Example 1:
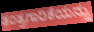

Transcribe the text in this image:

ತಂತ್ರಗಾರಿಕೆಯನ್ನು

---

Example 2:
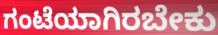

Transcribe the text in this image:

ಗಂಟೆಯಾಗಿರಬೇಕು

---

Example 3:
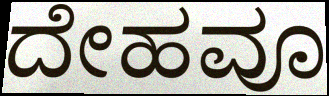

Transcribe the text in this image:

ದೇಹವೂ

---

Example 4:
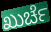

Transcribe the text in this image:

ಖುರ್ಚೆ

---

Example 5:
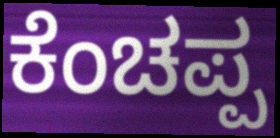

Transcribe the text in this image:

ಕೆಂಚಪ್ಪ